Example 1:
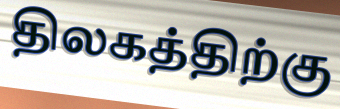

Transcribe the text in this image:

திலகத்திற்கு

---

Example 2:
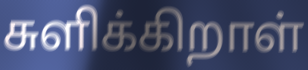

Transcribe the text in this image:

சுளிக்கிறாள்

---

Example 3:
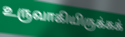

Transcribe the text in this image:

உருவாகியிருக்கக்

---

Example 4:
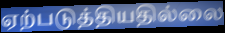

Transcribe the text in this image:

ஏற்படுத்தியதில்லை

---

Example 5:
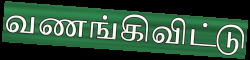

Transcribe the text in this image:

வணங்கிவிட்டு